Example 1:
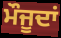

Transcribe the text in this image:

ਮੌਜੂਦਾਂ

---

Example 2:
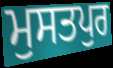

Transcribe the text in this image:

ਮੁਸਤਪੁਰ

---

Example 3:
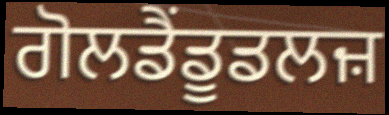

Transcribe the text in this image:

ਗੋਲਡੈਂਡੂਡਲਜ਼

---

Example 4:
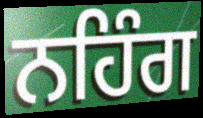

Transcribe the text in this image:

ਨਹਿੰਗ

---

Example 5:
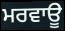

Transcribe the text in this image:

ਮਰਵਾਊ